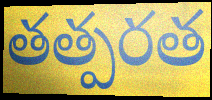
తత్పరత